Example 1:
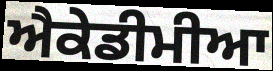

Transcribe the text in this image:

ਐਕੇਡੀਮੀਆ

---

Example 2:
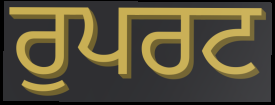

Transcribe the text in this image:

ਰੁਪਰਟ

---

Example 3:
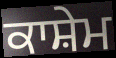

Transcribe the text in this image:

ਕਾਸ਼ੇਮ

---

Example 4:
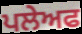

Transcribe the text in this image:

ਪਲੇਅਫ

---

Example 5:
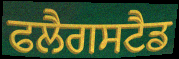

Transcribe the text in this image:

ਫਲੈਗਸਟੈਡ